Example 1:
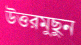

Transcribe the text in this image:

উত্তরমুছুন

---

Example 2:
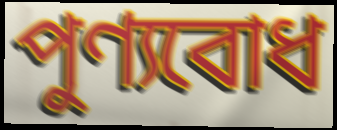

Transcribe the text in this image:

পুণ্যবোধ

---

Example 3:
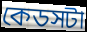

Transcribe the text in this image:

কেডসটা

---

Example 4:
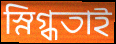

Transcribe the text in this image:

স্নিগ্ধতাই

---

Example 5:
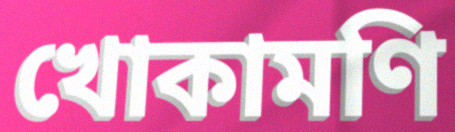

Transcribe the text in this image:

খোকামণি